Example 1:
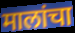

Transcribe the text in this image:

मालांचा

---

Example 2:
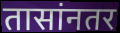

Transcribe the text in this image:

तासांनतर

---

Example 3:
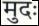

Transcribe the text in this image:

मुदः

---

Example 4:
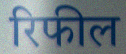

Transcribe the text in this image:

रिफील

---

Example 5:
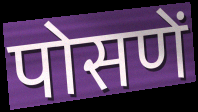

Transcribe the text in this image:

पोसणें